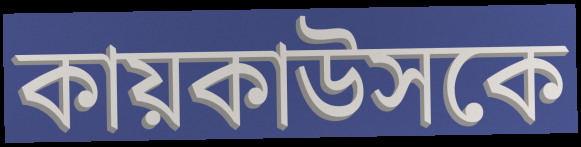
কায়কাউসকে